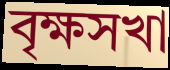
বৃক্ষসখা